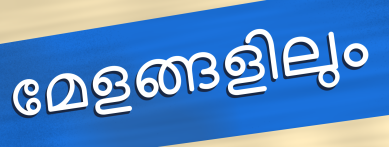
മേളങ്ങളിലും